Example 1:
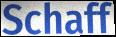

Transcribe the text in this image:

Schaff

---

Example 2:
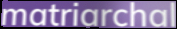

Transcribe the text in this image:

matriarchal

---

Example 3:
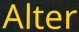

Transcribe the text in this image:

Alter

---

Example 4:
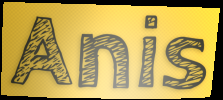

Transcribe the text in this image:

Anis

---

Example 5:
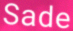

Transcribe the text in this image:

Sade